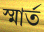
স্মার্ত